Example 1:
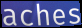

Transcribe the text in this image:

aches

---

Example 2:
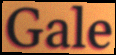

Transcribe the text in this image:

Gale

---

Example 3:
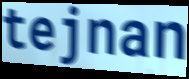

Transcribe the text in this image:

tejnan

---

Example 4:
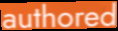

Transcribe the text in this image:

authored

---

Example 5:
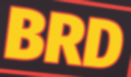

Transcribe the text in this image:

BRD